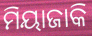
ମିୟାଜାକି